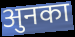
अुनका